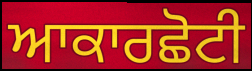
ਆਕਾਰਛੋਟੀ